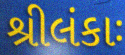
શ્રીલંકાઃ